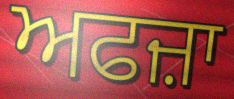
ਅਫਜ਼ਾ